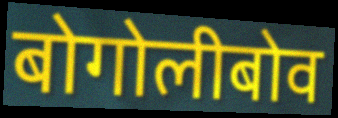
बोगोलीबोव